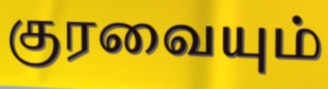
குரவையும்